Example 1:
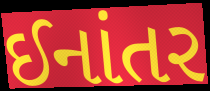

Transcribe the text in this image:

ઈનાંતર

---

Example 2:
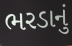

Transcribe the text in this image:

ભરડાનું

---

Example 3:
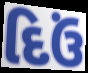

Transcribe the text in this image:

દિઉં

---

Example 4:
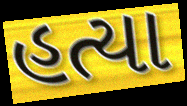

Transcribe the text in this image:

હત્યા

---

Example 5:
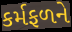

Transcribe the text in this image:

કર્મફળને